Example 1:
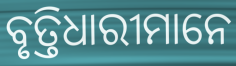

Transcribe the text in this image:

ବୃତ୍ତିଧାରୀମାନେ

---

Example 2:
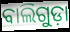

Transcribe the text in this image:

ବାଲିଗୁଡ଼ା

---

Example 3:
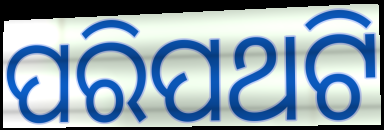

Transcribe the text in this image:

ପରିପଥଟି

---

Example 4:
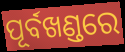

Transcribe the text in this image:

ପୂର୍ବଖଣ୍ଡରେ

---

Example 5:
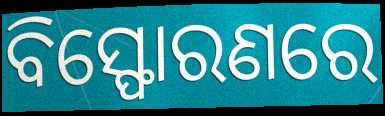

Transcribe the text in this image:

ବିସ୍ଫୋରଣରେ